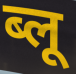
ब्लू